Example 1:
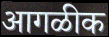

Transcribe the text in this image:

आगळीक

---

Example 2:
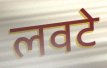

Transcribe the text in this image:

लवटे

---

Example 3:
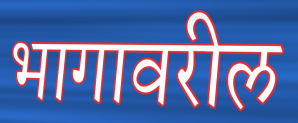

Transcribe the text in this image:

भागावरील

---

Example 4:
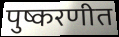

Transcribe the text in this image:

पुष्करणीत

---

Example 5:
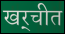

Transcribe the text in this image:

खर्चीत